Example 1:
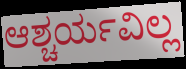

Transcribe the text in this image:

ಆಶ್ಚರ್ಯವಿಲ್ಲ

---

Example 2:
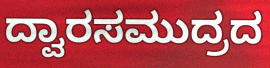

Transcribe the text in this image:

ದ್ವಾರಸಮುದ್ರದ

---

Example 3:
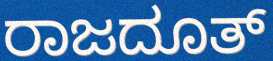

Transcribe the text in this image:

ರಾಜದೂತ್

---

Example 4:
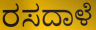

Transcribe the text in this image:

ರಸದಾಳೆ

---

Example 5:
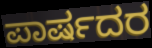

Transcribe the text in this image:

ಪಾರ್ಷದರ